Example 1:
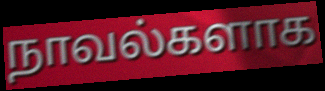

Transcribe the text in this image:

நாவல்களாக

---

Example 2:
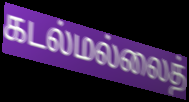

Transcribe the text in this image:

கடல்மல்லைத்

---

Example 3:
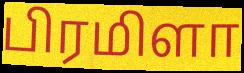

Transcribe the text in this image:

பிரமிளா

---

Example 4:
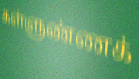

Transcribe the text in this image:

கள்ளுண்ணக்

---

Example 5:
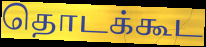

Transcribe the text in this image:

தொடக்கூட